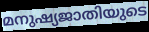
മനുഷ്യജാതിയുടെ